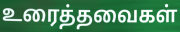
உரைத்தவைகள்